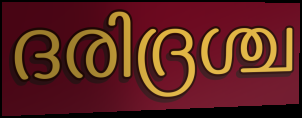
ദരിദ്രശ്ച